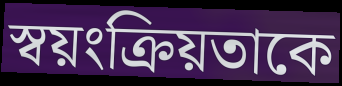
স্বয়ংক্রিয়তাকে